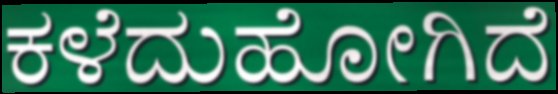
ಕಳೆದುಹೋಗಿದೆ